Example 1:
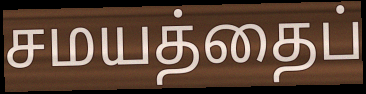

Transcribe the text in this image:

சமயத்தைப்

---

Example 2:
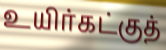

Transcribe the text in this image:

உயிர்கட்குத்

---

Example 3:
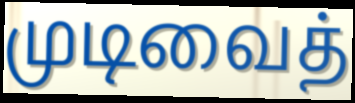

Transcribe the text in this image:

முடிவைத்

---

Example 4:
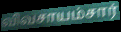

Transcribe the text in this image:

விவசாயம்சார்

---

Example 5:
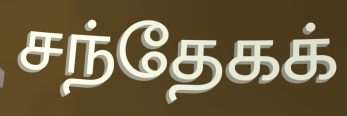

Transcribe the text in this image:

சந்தேகக்